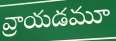
వ్రాయడమూ